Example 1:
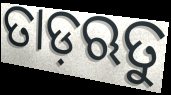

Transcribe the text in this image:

ତାଡ଼ଋତୁ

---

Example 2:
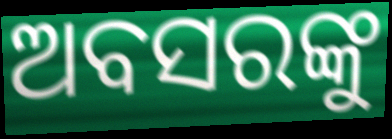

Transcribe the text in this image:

ଅବସରଙ୍କୁ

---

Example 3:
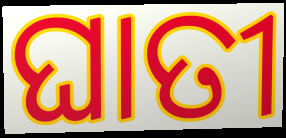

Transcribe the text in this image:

ଘାତୀ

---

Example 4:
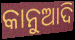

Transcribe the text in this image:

କାନୁଆଦି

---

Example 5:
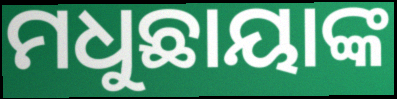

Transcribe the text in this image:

ମଧୁଛାୟାଙ୍କ